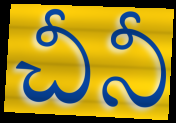
చీనీ